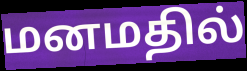
மனமதில்